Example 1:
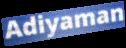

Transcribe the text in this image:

Adiyaman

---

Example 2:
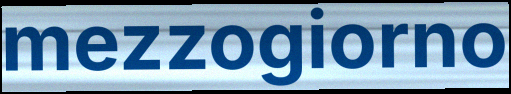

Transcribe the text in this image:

mezzogiorno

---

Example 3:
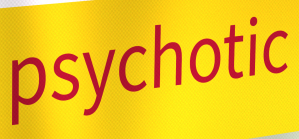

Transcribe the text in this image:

psychotic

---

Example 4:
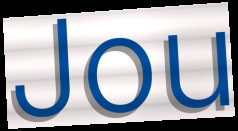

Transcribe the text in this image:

Jou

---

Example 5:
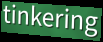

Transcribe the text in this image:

tinkering